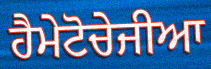
ਹੈਮੇਟੋਚੇਜੀਆ